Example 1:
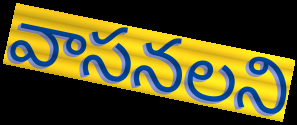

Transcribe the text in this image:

వాసనలని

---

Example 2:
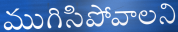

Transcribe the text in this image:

ముగిసిపోవాలని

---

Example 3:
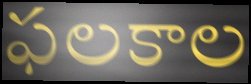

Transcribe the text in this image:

ఫలకాల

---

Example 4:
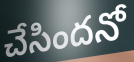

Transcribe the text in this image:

చేసిందనో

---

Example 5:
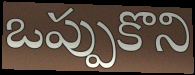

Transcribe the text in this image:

ఒప్పుకొని